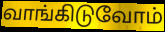
வாங்கிடுவோம்